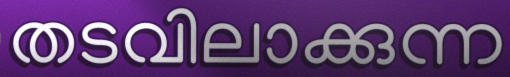
തടവിലാക്കുന്ന